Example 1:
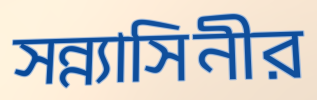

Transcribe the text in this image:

সন্ন্যাসিনীর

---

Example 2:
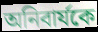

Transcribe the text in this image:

অনিবার্যকে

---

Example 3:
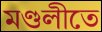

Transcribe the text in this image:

মণ্ডলীতে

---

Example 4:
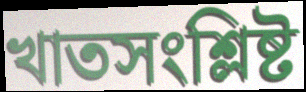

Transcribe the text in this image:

খাতসংশ্লিষ্ট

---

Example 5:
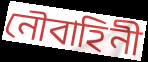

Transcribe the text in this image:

নৌবাহিনী